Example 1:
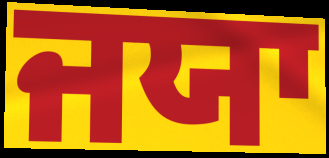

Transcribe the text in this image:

ਜਯਾ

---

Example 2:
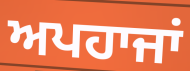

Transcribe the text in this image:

ਅਪਹਾਜਾਂ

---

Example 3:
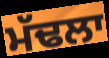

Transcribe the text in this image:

ਮੱਢਲਾ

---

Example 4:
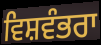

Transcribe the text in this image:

ਵਿਸ਼ਵੰਭਰਾ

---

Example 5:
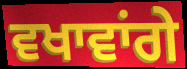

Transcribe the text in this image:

ਵਖਾਵਾਂਗੇ